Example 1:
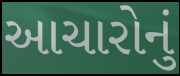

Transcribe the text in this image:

આચારોનું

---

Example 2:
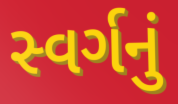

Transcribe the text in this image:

સ્વર્ગનું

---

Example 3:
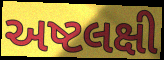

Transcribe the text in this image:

અષ્ટલક્ષી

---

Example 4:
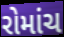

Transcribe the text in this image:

રોમાંચ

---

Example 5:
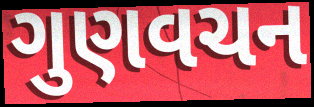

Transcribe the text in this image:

ગુણવચન